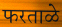
फरताळे